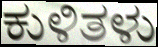
ಕುಳಿತಳು